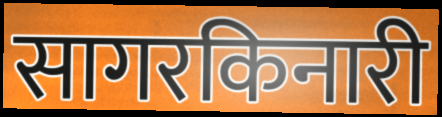
सागरकिनारी